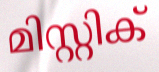
മിസ്റ്റിക്